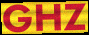
GHZ